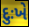
દુઃખે